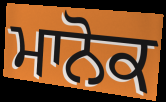
ਮਾਨੋਕ